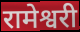
रामेश्वरी